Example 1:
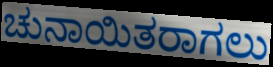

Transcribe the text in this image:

ಚುನಾಯಿತರಾಗಲು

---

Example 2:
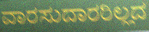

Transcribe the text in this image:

ವಾರಸುದಾರರಿಲ್ಲದ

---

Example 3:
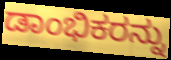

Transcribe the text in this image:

ಡಾಂಭಿಕರನ್ನು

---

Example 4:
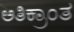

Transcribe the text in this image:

ಅತಿಕ್ರಾಂತ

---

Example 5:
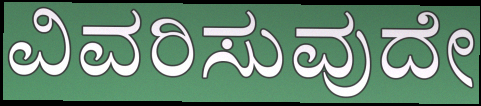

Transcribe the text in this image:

ವಿವರಿಸುವುದೇ